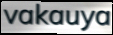
vakauya